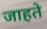
जाहते